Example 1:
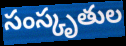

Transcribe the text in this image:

సంస్కృతుల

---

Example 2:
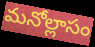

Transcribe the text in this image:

మనోల్లాసం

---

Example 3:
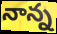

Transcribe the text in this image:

నాన్న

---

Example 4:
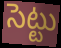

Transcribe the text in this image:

సెట్టు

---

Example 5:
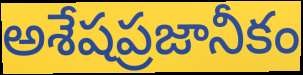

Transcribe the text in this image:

అశేషప్రజానీకం